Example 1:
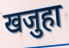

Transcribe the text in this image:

खजुहा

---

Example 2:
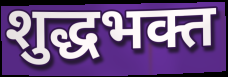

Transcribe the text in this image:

शुद्धभक्त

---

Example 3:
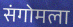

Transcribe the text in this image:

संगोमला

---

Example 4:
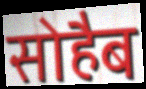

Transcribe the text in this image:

सोहैब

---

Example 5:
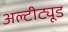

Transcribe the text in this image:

अल्टीट्यूड